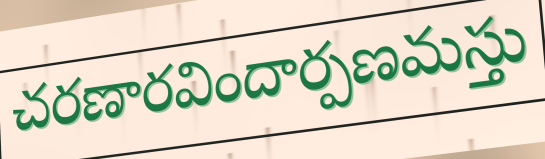
చరణారవిందార్పణమస్తు